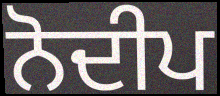
ਨੋਦੀਪ